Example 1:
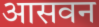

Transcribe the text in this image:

आसवन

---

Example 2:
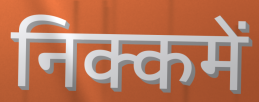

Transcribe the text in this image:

निक्कमें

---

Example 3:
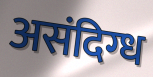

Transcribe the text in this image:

असंदिग्ध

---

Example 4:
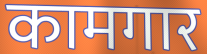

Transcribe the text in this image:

कामगार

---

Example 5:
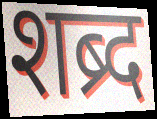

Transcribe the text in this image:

शब्र्द